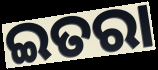
ଇତରା